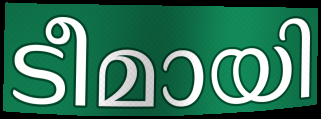
ടീമായി